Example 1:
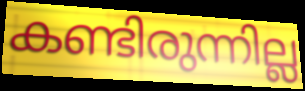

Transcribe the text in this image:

കണ്ടിരുന്നില്ല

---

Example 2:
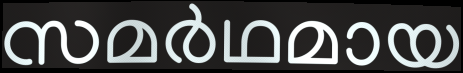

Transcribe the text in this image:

സമർഥമായ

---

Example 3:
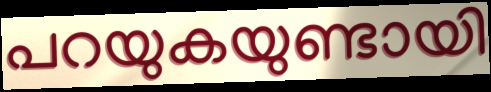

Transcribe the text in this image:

പറയുകയുണ്ടായി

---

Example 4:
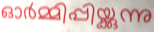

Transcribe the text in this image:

ഓർമ്മിപ്പിയ്ക്കുന്നു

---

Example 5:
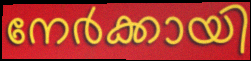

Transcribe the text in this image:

നേർക്കായി